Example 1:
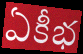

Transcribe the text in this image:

ఏకీభ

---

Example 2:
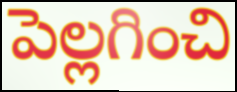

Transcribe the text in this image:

పెల్లగించి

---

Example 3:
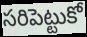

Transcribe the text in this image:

సరిపెట్టుకో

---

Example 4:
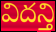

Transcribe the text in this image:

విదన్తి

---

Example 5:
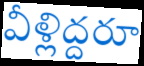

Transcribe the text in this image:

వీళ్లిద్దరూ